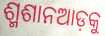
ଶ୍ମଶାନଆଡ଼କୁ